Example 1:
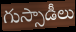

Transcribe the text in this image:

గుస్సాడీలు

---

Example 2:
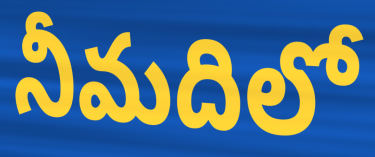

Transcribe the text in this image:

నీమదిలో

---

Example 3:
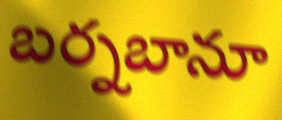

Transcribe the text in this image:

బర్నబానూ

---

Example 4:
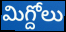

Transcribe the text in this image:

మిగ్దోలు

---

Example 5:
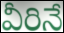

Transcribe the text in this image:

వీరినే